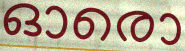
ഓരൊ